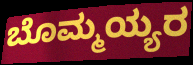
ಬೊಮ್ಮಯ್ಯರ